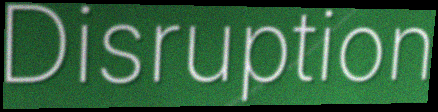
Disruption